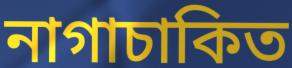
নাগাচাকিত